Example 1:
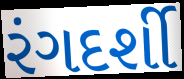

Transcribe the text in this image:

રંગદર્શી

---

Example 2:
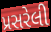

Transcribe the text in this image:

પ્રસરેલી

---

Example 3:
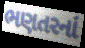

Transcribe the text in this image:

ભણતરનાં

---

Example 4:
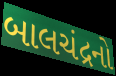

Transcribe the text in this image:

બાલચંદ્રનો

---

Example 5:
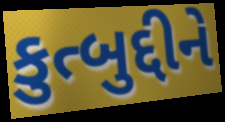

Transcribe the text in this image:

કુત્બુદ્દીને